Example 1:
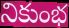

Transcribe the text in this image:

నికుంభ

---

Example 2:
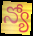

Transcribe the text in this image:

న్యో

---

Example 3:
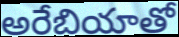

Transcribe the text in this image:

అరేబియాతో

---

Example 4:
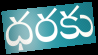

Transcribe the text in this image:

ధరకు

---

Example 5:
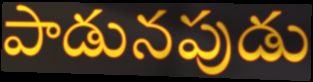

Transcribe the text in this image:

పాడునపుడు